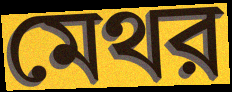
মেথর